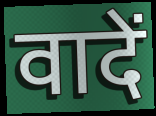
वादें